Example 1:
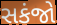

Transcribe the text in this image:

સકંજો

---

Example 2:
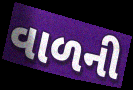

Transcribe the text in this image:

વાળની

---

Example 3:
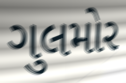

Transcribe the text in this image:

ગુલમોર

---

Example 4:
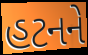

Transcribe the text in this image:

હટનને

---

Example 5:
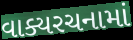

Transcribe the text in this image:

વાક્યરચનામાં